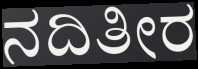
ನದಿತೀರ